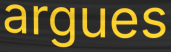
argues